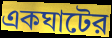
একঘাটের